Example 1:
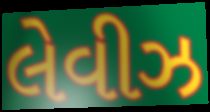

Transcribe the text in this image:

લેવીઝ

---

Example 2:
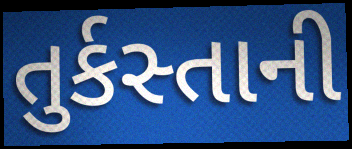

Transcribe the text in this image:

તુર્કસ્તાની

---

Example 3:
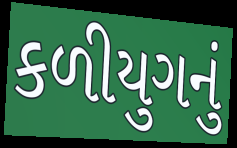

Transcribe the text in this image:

કળીયુગનું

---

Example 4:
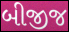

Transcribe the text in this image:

બીજીજ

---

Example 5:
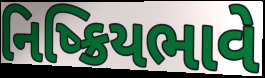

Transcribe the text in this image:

નિષ્ક્રિયભાવે